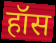
हॉस